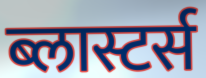
ब्लास्टर्स